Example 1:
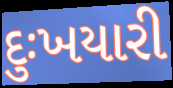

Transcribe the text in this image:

દુઃખયારી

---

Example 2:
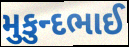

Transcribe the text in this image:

મુકુન્દભાઈ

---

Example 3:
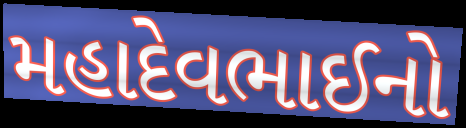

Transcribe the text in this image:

મહાદેવભાઈનો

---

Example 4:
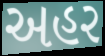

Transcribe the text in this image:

અહર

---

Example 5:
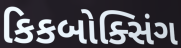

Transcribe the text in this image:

કિકબોક્સિંગ